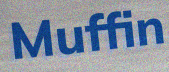
Muffin